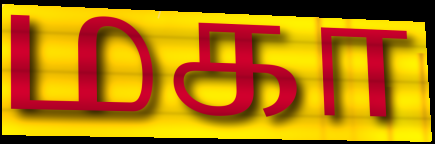
மகா